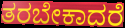
ತರಬೇಕಾದರೆ